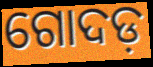
ଗୋଦଡ଼